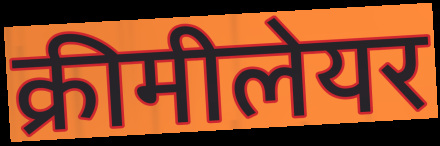
क्रीमीलेयर